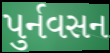
પુર્નવસન